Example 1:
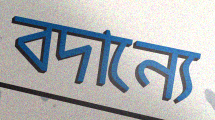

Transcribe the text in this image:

বদান্যে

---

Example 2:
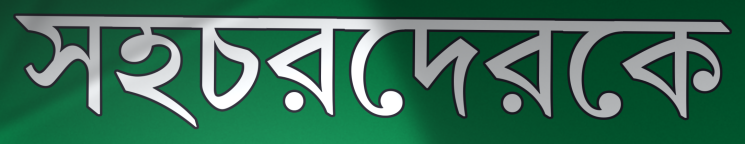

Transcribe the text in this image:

সহচরদেরকে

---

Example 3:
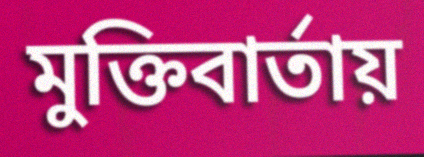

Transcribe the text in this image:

মুক্তিবার্তায়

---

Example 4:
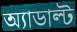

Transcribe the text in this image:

অ্যাডাল্ট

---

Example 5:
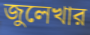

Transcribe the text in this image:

জুলেখার